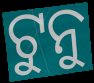
ଟୁନୁ